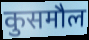
कुसमौल